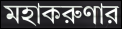
মহাকরুণার